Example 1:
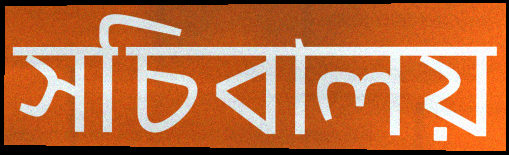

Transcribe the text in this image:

সচিবালয়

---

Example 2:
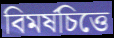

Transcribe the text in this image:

বিমর্ষচিত্তে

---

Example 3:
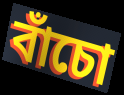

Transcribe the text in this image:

বাঁচো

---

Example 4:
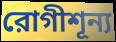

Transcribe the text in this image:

রোগীশূন্য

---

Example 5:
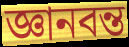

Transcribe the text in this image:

জ্ঞানবন্ত